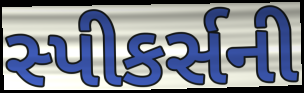
સ્પીકર્સની